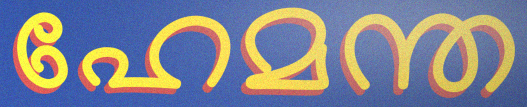
ഹേമന്ത